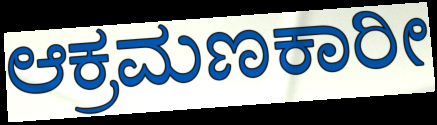
ಆಕ್ರಮಣಕಾರೀ